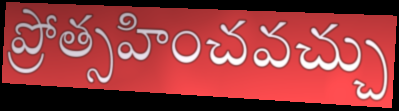
ప్రోత్సహించవచ్చు